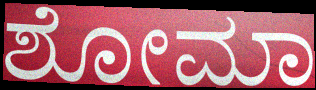
ಶೋಮಾ